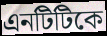
এনটিটিকে